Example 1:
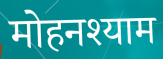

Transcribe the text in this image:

मोहनश्याम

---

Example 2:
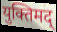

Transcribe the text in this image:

युक्तिमद्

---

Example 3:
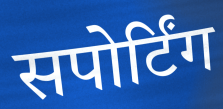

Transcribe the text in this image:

सपोर्टिंग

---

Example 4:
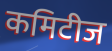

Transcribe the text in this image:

कमिटीज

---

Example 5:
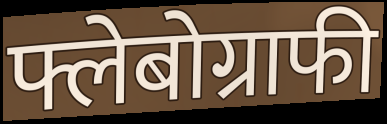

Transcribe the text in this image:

फ्लेबोग्राफी